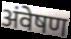
अंवेषण